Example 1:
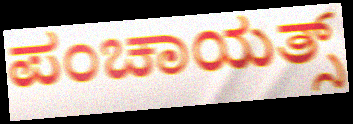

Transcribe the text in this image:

ಪಂಚಾಯತ್ಸ್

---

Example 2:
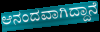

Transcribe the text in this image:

ಆನಂದವಾಗಿದ್ದಾನೆ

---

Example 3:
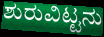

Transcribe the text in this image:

ಶುರುವಿಟ್ಟನು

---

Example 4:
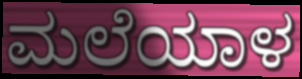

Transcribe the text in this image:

ಮಲೆಯಾಳ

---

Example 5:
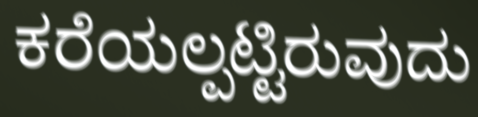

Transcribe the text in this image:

ಕರೆಯಲ್ಪಟ್ಟಿರುವುದು